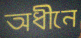
অধীনে